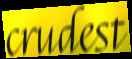
crudest